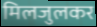
मिलजुलकर